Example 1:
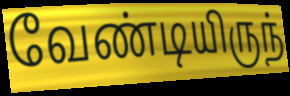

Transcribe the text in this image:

வேண்டியிருந்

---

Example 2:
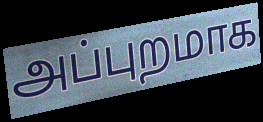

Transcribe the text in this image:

அப்புறமாக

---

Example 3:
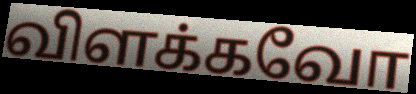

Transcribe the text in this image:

விளக்கவோ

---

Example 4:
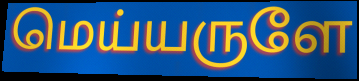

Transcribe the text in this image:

மெய்யருளே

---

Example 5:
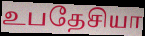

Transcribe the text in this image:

உபதேசியா